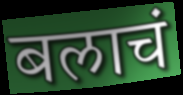
बलाचं